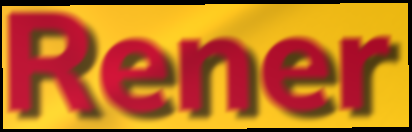
Rener